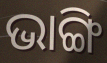
ଭାଙ୍ଗି